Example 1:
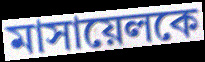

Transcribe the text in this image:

মাসায়েলকে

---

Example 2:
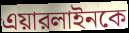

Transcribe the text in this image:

এয়ারলাইনকে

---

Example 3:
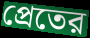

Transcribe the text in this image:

প্রেতের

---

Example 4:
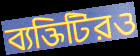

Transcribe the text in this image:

ব্যক্তিটিরও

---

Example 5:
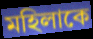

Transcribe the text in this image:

মহিলাকে